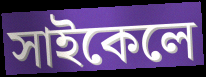
সাইকেলে